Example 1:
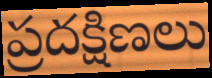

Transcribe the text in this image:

ప్రదక్షిణలు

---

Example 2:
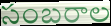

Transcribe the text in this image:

సంబరాల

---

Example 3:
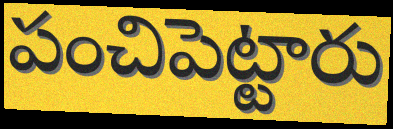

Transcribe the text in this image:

పంచిపెట్టారు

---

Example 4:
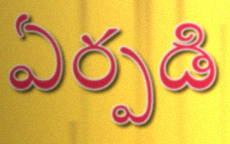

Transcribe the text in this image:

ఏర్పడి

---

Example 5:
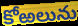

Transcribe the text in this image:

కోఱలును